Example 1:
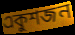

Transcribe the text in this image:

একুশজন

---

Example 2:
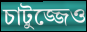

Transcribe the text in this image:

চাটুজ্জেও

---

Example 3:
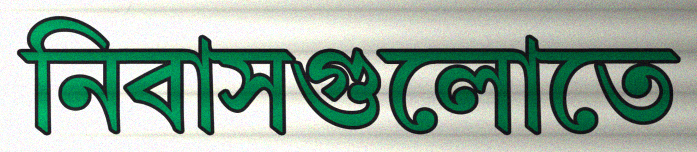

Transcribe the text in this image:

নিবাসগুলোতে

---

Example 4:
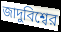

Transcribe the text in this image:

জাদুবিশ্বের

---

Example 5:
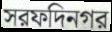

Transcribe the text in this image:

সরফদিনগর